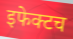
इफेक्टच